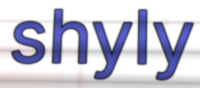
shyly